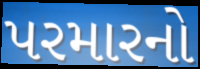
પરમારનો